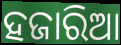
ହଜାରିଆ